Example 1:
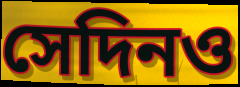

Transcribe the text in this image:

সেদিনও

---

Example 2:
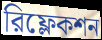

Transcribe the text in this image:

রিফ্লেকশন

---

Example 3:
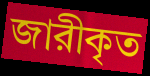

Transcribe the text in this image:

জারীকৃত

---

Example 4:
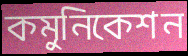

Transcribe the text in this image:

কমুনিকেশন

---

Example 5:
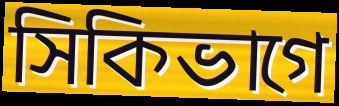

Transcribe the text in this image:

সিকিভাগে